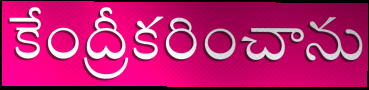
కేంద్రీకరించాను